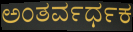
ಅಂತರ್ವರ್ಧಕ